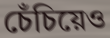
চেঁচিয়েও